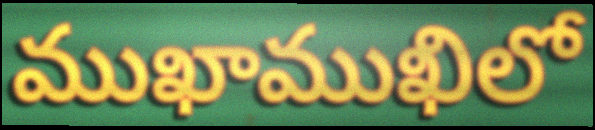
ముఖాముఖిలో